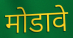
मोडावे